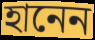
হানেন